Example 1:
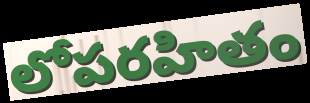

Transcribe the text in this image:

లోపరహితం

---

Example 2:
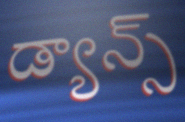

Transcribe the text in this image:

డ్యాన్స్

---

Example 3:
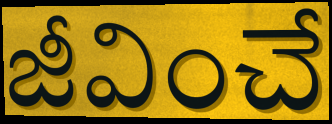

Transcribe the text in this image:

జీవించే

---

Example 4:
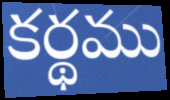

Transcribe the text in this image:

కర్థము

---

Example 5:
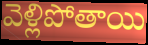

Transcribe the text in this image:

వెళ్లిపోతాయి